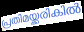
പ്രതിമയ്ക്കരികിൽ